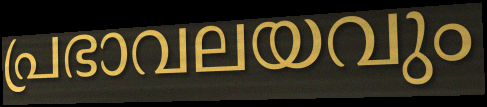
പ്രഭാവലയവും